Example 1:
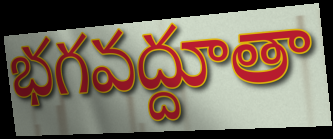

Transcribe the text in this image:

భగవద్దూతా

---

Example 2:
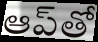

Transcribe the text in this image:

ఆప్‌తో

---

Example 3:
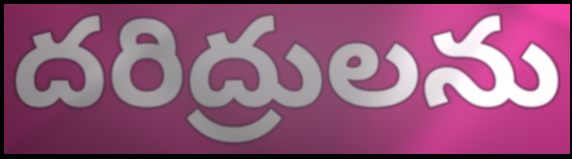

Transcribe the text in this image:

దరిద్రులను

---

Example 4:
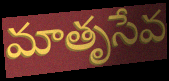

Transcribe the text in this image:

మాతృసేవ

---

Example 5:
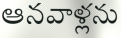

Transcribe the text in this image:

ఆనవాళ్లను